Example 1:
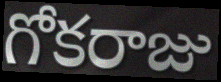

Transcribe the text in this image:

గోకరాజు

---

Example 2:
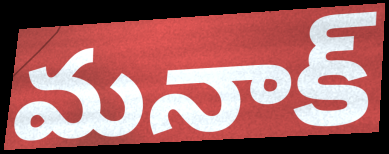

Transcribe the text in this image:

మనాక్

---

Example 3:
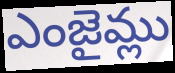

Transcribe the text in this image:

ఎంజైమ్లు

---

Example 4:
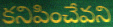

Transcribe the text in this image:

కనిపించేవని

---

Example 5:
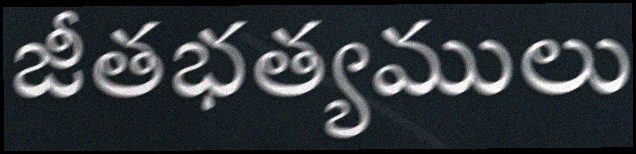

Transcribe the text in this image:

జీతభత్యములు